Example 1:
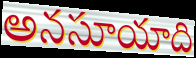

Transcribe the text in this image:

అనసూయాది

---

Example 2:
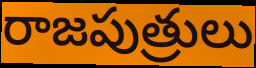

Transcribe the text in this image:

రాజపుత్రులు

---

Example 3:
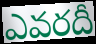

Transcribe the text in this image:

ఎవరదీ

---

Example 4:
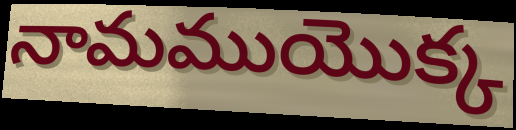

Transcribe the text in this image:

నామముయొక్క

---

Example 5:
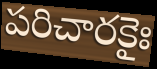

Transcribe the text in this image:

పరిచారకైః